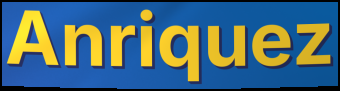
Anriquez